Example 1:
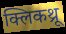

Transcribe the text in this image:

क्लिकथ्रू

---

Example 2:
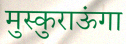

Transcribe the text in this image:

मुस्कुराऊंगा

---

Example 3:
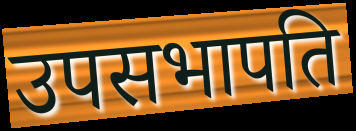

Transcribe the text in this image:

उपसभापति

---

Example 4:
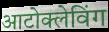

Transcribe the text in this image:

आटोक्लेविंग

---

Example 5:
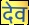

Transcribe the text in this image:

देव